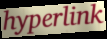
hyperlink